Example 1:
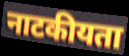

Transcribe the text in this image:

नाटकीयता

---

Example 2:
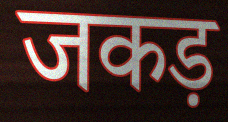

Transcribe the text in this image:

जकड़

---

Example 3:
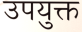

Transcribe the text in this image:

उपयुक्त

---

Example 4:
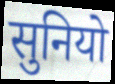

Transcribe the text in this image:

सुनियो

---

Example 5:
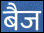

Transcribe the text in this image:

बैज